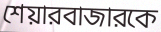
শেয়ারবাজারকে